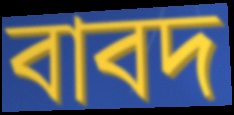
বাবদ